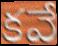
కవే